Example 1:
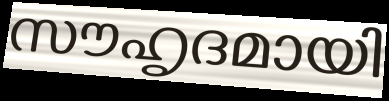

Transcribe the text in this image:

സൗഹൃദമായി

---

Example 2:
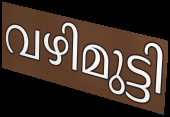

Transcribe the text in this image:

വഴിമുട്ടി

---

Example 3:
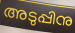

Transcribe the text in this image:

അടുപ്പിനു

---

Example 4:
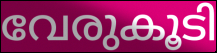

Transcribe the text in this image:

വേരുകൂടി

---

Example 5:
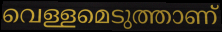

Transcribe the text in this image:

വെള്ളമെടുത്താണ്